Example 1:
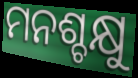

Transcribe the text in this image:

ମନଶ୍ଚକ୍ଷୁ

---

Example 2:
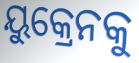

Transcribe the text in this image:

ୟୁକ୍ରେନକୁ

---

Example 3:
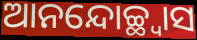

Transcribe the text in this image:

ଆନନ୍ଦୋଚ୍ଛ୍ୱାସ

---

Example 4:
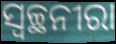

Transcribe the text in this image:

ସ୍ବଚ୍ଛନୀରା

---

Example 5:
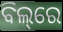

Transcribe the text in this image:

ବିଲ୍‌ରେ